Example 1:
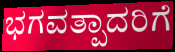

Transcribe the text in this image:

ಭಗವತ್ಪಾದರಿಗೆ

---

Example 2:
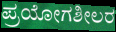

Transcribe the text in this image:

ಪ್ರಯೋಗಶೀಲರ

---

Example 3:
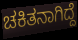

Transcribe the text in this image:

ಚಕಿತನಾಗಿದ್ದೆ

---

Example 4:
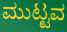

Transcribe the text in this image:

ಮುಟ್ಟವ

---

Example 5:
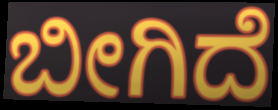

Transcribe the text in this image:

ಬೀಗಿದೆ